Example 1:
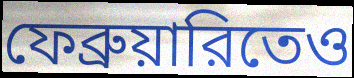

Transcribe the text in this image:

ফেব্রুয়ারিতেও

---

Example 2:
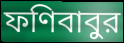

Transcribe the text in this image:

ফণিবাবুর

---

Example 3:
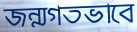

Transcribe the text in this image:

জন্মগতভাবে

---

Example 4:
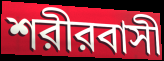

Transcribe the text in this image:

শরীরবাসী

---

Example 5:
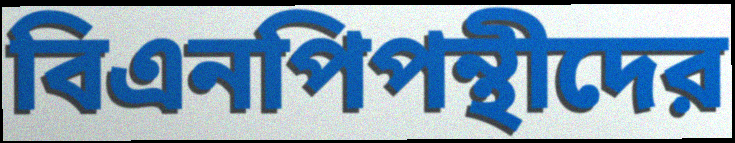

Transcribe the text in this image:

বিএনপিপন্থীদের